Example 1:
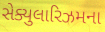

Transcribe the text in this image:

સેક્યુલારિઝમના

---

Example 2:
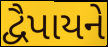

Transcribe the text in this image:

દ્વૈપાયને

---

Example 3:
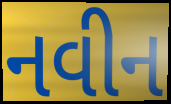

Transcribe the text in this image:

નવીન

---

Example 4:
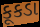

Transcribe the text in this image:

કૂકડા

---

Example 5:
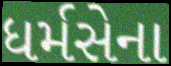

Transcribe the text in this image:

ધર્મસેના